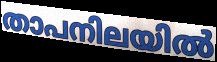
താപനിലയിൽ